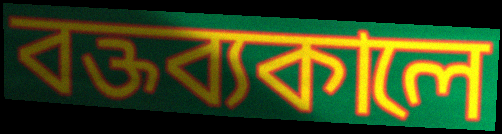
বক্তব্যকালে